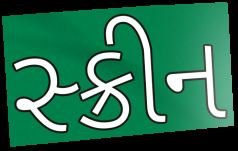
સ્ક્રીન